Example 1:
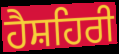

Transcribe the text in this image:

ਹੈਸ਼ਹਿਰੀ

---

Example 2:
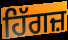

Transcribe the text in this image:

ਹਿੱਗਜ਼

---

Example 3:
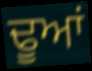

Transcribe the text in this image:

ਢੂਆਂ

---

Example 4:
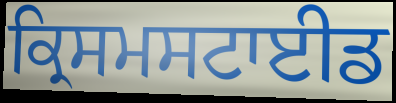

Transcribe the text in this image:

ਕ੍ਰਿਸਮਸਟਾਈਡ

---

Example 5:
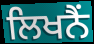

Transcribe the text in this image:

ਲਿਖਨੈਂ